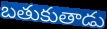
బతుకుతాడు